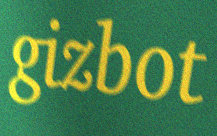
gizbot